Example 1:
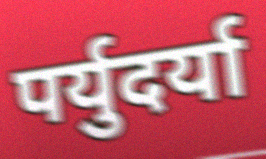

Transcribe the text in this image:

पर्युदर्या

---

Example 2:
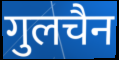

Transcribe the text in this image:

गुलचैन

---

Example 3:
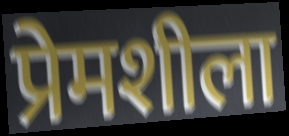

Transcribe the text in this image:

प्रेमशीला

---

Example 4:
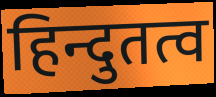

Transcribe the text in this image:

हिन्दुतत्व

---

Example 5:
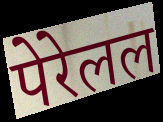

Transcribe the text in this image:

पेरेलल